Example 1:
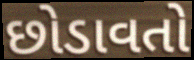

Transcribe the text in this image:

છોડાવતો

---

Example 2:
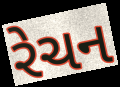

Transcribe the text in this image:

રેચન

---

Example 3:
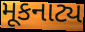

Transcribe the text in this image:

મૂકનાટ્ય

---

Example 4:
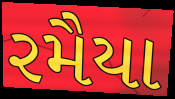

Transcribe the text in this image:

રમૈયા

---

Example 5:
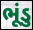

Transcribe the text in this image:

ભૂંડુ